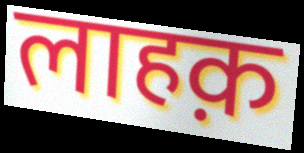
लाहक़